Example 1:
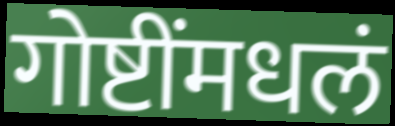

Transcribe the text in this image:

गोष्टींमधलं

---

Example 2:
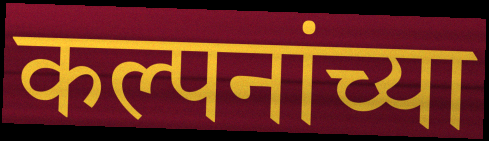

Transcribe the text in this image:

कल्पनांच्या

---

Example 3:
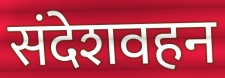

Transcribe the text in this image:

संदेशवहन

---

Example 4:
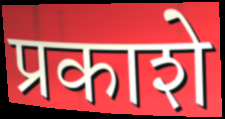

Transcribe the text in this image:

प्रकाशे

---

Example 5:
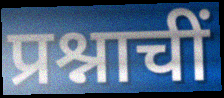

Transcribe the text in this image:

प्रश्नाचीं